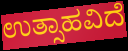
ಉತ್ಸಾಹವಿದೆ